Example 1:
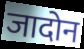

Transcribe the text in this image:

जादोन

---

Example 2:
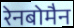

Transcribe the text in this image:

रेनबोमैन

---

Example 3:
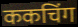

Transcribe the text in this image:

ककचिंग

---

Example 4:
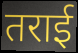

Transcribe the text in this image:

तराई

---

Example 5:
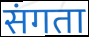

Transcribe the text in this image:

संगता